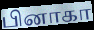
பினாகா